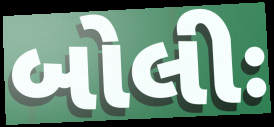
બોલીઃ